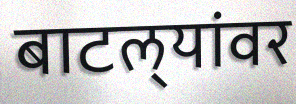
बाटल्यांवर